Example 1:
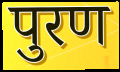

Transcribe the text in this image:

पुरण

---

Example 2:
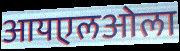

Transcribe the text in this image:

आयएलओला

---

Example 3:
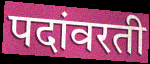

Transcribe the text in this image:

पदांवरती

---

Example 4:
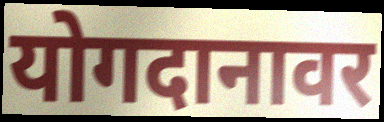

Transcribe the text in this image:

योगदानावर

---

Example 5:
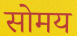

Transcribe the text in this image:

सोमय